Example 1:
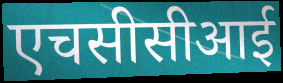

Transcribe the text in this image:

एचसीसीआई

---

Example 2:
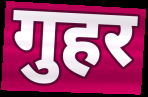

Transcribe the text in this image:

गुहर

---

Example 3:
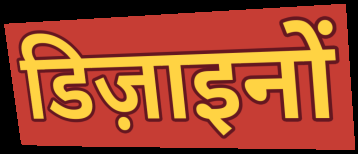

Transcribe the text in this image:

डिज़ाइनों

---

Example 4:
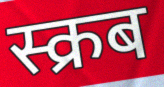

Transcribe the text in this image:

स्क्रब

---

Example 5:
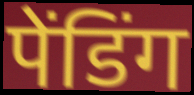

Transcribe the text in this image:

पेंडिंग